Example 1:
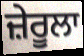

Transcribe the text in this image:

ਜ਼ੇਰੂਲਾ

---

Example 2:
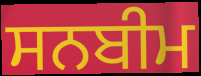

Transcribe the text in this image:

ਸਨਬੀਮ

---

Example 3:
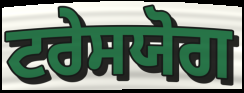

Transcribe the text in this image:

ਟਰੇਸਯੋਗ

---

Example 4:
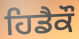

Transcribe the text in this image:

ਹਿਡੈਕੌ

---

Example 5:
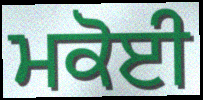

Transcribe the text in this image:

ਮਕੋਈ